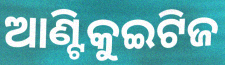
ଆଣ୍ଟିକୁଇଟିଜ